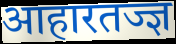
आहारतज्ज्ञ